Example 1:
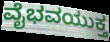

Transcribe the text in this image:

ವೈಭವಯುಕ್ತ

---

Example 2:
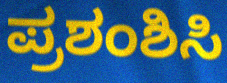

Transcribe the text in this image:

ಪ್ರಶಂಶಿಸಿ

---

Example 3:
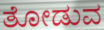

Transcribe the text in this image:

ತೋಡುವ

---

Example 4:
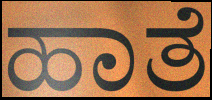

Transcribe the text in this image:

ಹಾತೆ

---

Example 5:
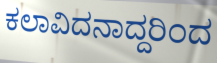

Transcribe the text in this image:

ಕಲಾವಿದನಾದ್ದರಿಂದ